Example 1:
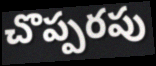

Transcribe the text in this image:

చొప్పరపు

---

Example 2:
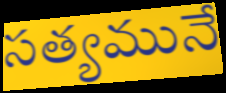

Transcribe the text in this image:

సత్యమునే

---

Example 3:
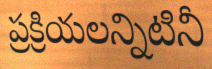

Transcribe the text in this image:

ప్రక్రియలన్నిటినీ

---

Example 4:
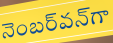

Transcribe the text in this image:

నెంబర్‌వన్‌గా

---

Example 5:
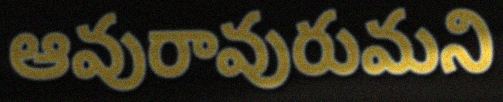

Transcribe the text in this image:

ఆవురావురుమని